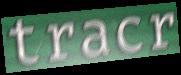
tracr